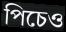
পিচেও